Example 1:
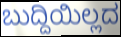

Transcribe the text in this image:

ಬುದ್ದಿಯಿಲ್ಲದ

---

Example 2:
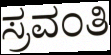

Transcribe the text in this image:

ಸ್ರವಂತಿ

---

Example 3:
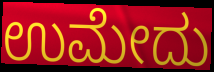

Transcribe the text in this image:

ಉಮೇದು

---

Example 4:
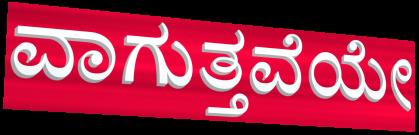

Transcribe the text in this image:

ವಾಗುತ್ತವೆಯೇ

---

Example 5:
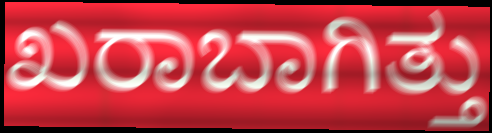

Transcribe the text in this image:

ಖರಾಬಾಗಿತ್ತು